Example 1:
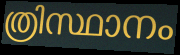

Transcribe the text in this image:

ത്രിസ്ഥാനം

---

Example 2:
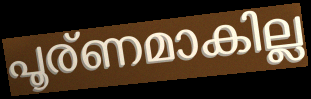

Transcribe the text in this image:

പൂര്ണമാകില്ല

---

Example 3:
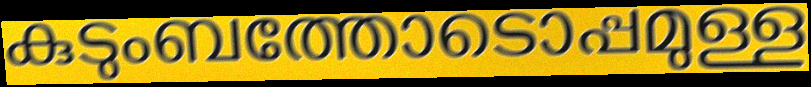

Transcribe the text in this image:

കുടുംബത്തോടൊപ്പമുള്ള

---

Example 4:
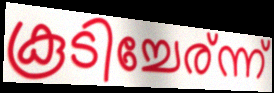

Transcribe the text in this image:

കൂടിച്ചേര്ന്ന്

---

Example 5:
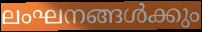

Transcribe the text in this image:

ലംഘനങ്ങൾക്കും